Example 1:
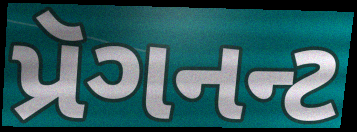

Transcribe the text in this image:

પ્રૅગનન્ટ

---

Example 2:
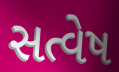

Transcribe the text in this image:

સત્વેષ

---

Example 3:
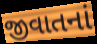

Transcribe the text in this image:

જીવાતનાં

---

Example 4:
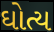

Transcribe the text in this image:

ઘોત્ય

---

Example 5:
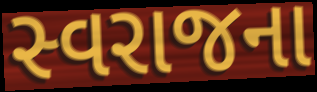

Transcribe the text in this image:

સ્વરાજના